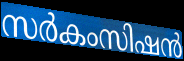
സർകംസിഷൻ